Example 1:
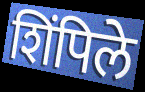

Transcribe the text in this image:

शिंपिले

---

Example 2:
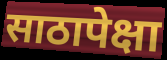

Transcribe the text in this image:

साठापेक्षा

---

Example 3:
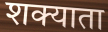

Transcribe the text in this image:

शक्याता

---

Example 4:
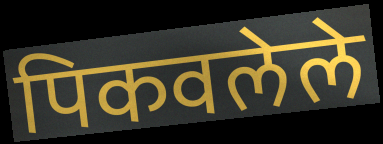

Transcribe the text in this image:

पिकवलेले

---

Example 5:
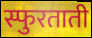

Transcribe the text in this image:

स्फुरताती